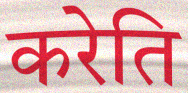
करेति